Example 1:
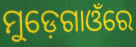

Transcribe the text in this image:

ମୁଡ଼େଗାଓଁରେ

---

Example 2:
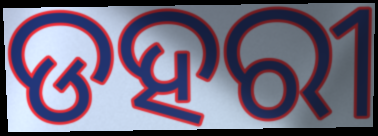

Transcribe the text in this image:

ଡହରୀ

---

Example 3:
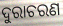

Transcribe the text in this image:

ଦୁରାଚରଣ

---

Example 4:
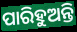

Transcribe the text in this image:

ପାରିହୁଅନ୍ତି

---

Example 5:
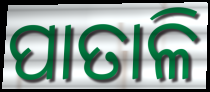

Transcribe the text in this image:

ପାତାଳି